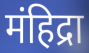
मंहिद्रा